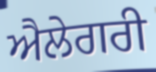
ਐਲੇਗਰੀ